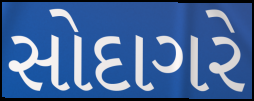
સોદાગરે